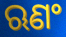
ଋଣଂ